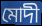
মোদী